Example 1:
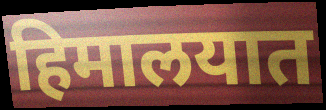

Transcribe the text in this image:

हिमालयात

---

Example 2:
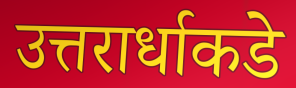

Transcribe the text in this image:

उत्तरार्धाकडे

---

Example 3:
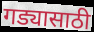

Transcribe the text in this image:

गड्यासाठी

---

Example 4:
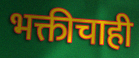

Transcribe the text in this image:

भक्तीचाही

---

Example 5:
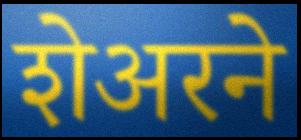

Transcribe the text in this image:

शेअरने